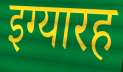
इग्यारह